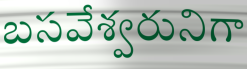
బసవేశ్వరునిగా